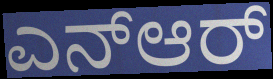
ಎನ್ಆರ್